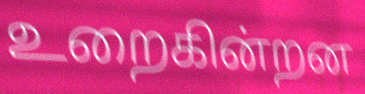
உறைகின்றன